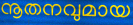
നൂതനവുമായ